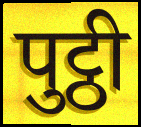
पुट्ठी